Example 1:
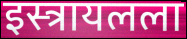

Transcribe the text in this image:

इस्त्रायलला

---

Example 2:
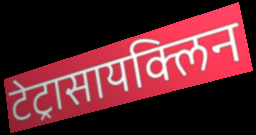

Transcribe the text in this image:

टेट्रासायक्लिन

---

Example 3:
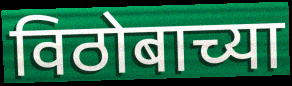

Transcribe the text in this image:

विठोबाच्या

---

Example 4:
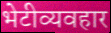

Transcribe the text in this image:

भेटीव्यवहार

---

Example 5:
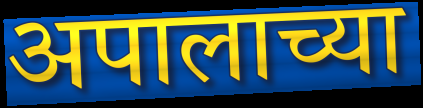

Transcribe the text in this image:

अपालाच्या